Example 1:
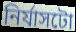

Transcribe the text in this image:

নিৰ্যাসটো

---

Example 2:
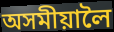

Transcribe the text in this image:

অসমীয়ালৈ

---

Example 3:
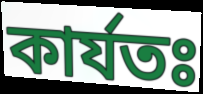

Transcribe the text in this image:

কাৰ্যতঃ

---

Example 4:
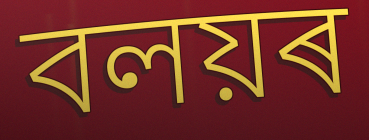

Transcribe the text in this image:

বলয়ৰ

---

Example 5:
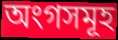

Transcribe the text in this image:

অংগসমূহ